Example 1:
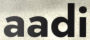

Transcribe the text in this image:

aadi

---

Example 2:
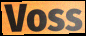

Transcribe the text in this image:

Voss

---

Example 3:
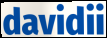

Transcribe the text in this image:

davidii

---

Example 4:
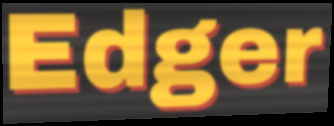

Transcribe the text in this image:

Edger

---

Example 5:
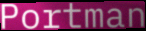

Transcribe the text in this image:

Portman